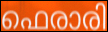
ഫെരാരി